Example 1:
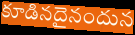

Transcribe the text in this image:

కూడినదైనందున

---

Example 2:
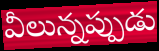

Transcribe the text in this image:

వీలున్నప్పుడు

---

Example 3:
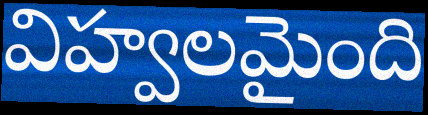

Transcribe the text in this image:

విహ్వలమైంది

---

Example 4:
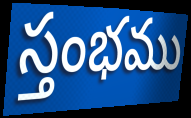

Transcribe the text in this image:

స్తంభము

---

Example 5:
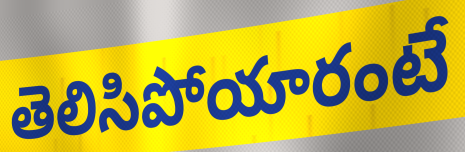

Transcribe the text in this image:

తెలిసిపోయారంటే